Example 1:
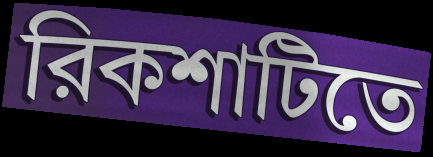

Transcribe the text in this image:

রিকশাটিতে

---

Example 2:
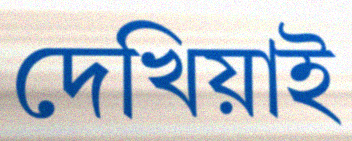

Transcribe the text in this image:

দেখিয়াই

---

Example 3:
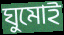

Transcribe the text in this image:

ঘুমোই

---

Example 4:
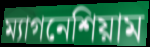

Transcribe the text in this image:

ম্যাগনেশিয়াম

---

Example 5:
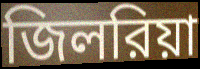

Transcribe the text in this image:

জিলরিয়া